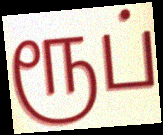
ரூப்